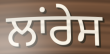
ਲਾਂਰੇਸ